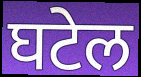
घटेल